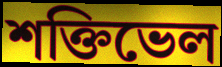
শক্তিভেল